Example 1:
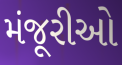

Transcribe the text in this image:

મંજૂરીઓ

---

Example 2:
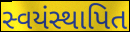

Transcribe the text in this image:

સ્વયંસ્થાપિત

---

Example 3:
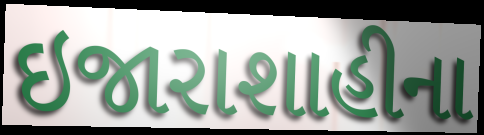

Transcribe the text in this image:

ઇજારાશાહીના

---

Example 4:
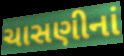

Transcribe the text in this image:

ચાસણીનાં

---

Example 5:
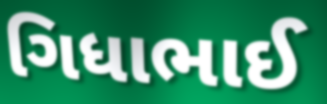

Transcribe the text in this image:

ગિધાભાઈ